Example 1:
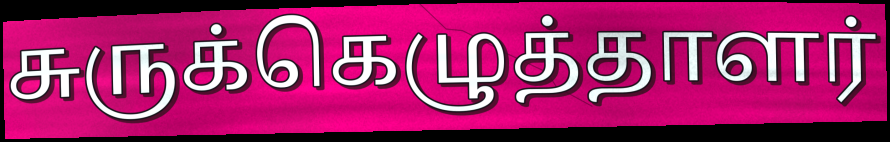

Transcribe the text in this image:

சுருக்கெழுத்தாளர்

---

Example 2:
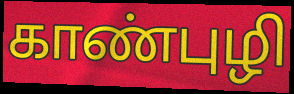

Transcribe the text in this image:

காண்புழி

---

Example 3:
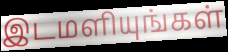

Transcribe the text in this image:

இடமளியுங்கள்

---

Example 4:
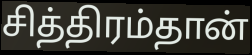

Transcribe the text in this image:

சித்திரம்தான்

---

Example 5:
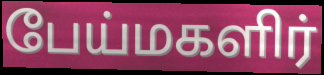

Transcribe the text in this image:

பேய்மகளிர்